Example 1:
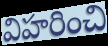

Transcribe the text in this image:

విహరించి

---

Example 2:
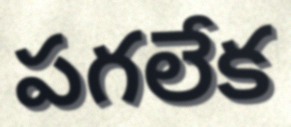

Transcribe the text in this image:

పగలేక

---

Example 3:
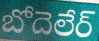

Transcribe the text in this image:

బోదెలేర్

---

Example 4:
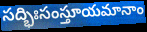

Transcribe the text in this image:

సద్భిఃసంస్తూయమానాం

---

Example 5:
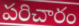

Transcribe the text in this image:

పరిచారం